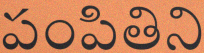
పంపితిని